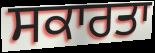
ਸਕਾਰਤਾ